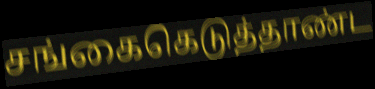
சங்கைகெடுத்தாண்ட